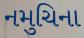
નમુચિના